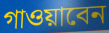
গাওয়াবেন